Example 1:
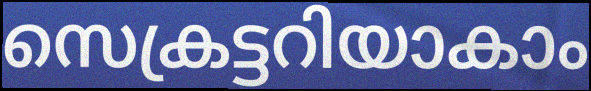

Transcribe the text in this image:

സെക്രട്ടറിയാകാം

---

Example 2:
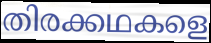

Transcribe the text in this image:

തിരക്കഥകളെ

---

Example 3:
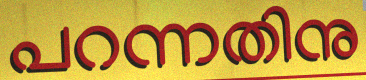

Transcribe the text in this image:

പറന്നതിനു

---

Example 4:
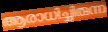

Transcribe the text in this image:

ആരാധിച്ചിരുന്ന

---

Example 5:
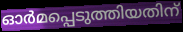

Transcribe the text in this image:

ഓർമപ്പെടുത്തിയതിന്